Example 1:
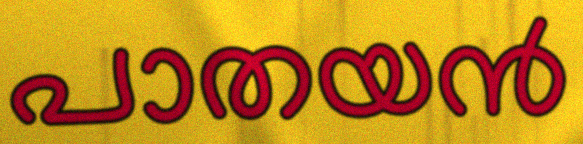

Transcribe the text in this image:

പാതയൻ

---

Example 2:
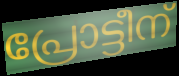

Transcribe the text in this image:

പ്രോട്ടീന്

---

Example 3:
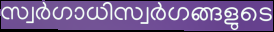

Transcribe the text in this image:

സ്വർഗാധിസ്വർഗങ്ങളുടെ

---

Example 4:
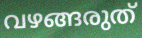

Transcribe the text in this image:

വഴങ്ങരുത്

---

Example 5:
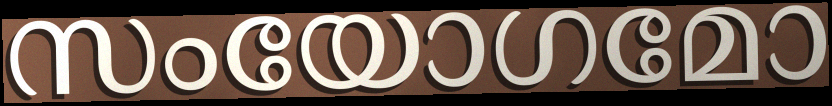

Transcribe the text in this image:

സംയോഗമോ